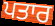
ਪਤਾਰ